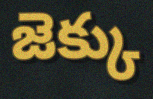
జెక్కు